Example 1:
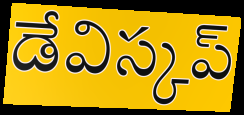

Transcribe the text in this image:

డేవిస్కప్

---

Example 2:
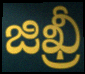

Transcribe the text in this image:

జిఖ్రీ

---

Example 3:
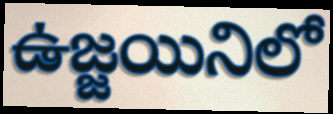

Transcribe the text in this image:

ఉజ్జయినిలో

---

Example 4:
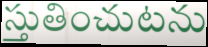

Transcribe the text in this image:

స్తుతించుటను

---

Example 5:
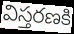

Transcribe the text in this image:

విస్తరణకి